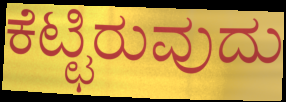
ಕೆಟ್ಟಿರುವುದು